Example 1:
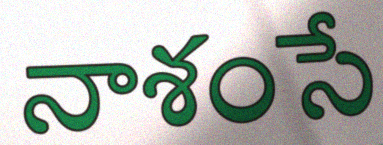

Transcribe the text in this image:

నాశంసే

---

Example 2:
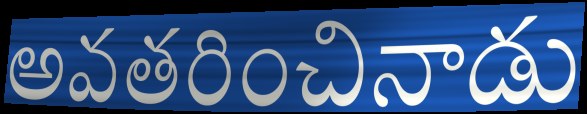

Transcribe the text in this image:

అవతరించినాడు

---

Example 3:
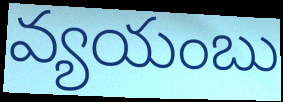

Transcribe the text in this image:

వ్యయంబు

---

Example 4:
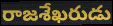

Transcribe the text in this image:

రాజశేఖరుడు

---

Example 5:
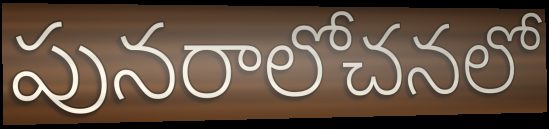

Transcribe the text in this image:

పునరాలోచనలో